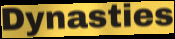
Dynasties